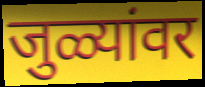
जुळ्यांवर